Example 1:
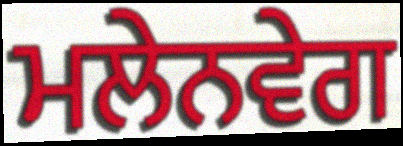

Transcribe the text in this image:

ਮਲੇਨਵੇਗ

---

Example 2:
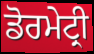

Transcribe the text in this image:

ਡੋਰਮੇਟ੍ਰੀ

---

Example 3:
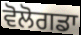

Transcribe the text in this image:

ਵੋਲੋਗਡਾ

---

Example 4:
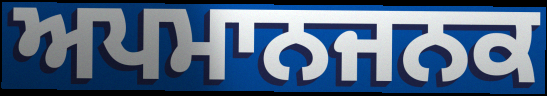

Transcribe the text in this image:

ਅਪਮਾਨਜਨਕ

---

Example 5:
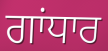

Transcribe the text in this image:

ਗਾਂਧਾਰ